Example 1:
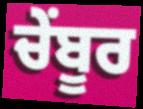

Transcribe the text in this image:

ਚੇਂਬੂਰ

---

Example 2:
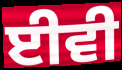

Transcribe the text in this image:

ਈਵੀ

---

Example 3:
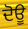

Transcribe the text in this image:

ਦੋਊ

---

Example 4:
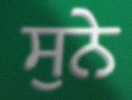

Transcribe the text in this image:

ਸੁਨੇ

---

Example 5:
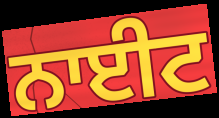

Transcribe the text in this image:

ਨਾਈਟ